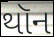
થૉન